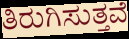
ತಿರುಗಿಸುತ್ತವೆ